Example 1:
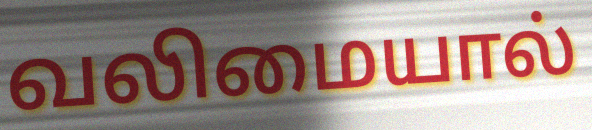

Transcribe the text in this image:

வலிமையால்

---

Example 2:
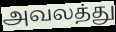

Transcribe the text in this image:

அவலத்து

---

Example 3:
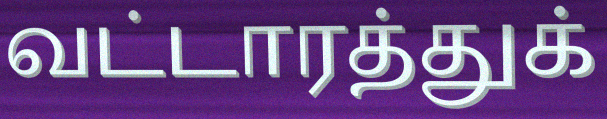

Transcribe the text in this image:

வட்டாரத்துக்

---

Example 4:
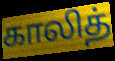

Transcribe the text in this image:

காலித்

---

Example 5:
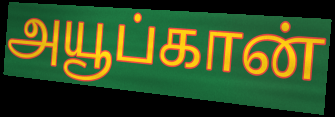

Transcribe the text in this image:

அயூப்கான்